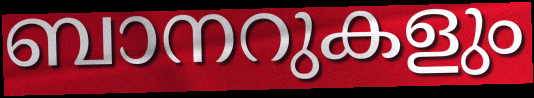
ബാനറുകളും